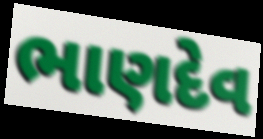
ભાણદેવ